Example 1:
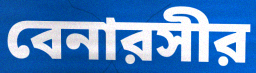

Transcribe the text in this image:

বেনারসীর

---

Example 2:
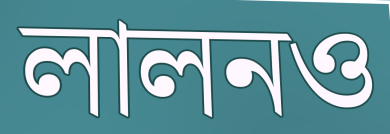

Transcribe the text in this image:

লালনও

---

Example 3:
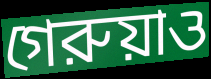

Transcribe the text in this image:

গেরুয়াও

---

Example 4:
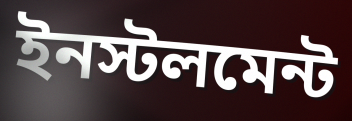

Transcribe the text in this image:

ইনস্টলমেন্ট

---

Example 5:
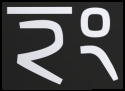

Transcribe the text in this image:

হং